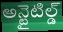
అన్టైటిల్డ్